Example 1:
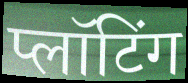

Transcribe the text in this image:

प्लॉटिंग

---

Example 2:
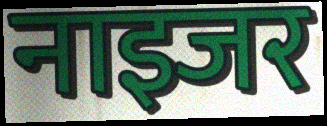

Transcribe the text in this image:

नाइजर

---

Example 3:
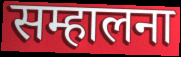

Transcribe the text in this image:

सम्हालना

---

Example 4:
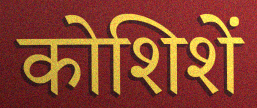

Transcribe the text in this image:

कोशिशें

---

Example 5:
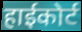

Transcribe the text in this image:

हाईकोर्ट